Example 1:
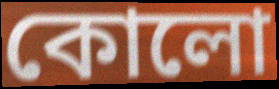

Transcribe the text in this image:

কোলো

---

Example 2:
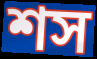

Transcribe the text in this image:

শস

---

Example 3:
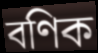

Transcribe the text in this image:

বণিক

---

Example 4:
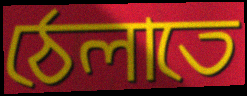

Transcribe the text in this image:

ঠেলাতে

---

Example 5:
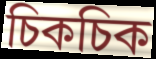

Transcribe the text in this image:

চিকচিক